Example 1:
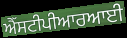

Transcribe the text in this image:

ਐੱਸਟੀਪੀਆਰਆਈ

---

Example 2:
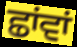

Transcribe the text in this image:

ਛਾਂਵਾਂ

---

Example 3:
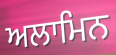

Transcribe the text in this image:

ਅਲਾਮਿਨ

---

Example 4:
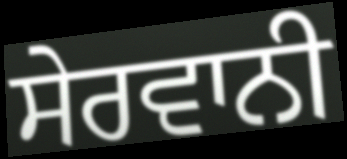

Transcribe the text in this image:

ਸੇਰਵਾਨੀ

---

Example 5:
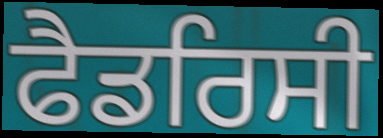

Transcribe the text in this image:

ਫੈਡਰਿਸੀ